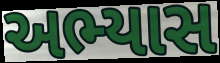
અભ્યાસ